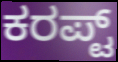
ಕರಪ್ಟ್